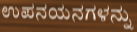
ಉಪನಯನಗಳನ್ನು